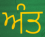
ਅੰਤ